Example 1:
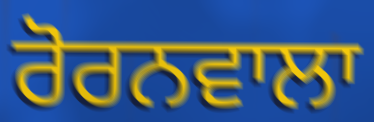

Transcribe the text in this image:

ਰੋਰਨਵਾਲਾ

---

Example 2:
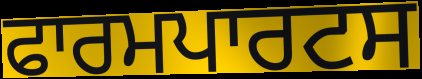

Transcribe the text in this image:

ਫਾਰਮਪਾਰਟਸ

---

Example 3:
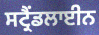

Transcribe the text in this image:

ਸਟ੍ਰੈਂਡਲਾਈਨ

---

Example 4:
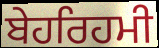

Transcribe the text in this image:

ਬੇਹਰਿਹਮੀ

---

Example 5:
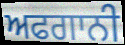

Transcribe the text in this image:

ਅਫਗਾਨੀ